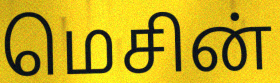
மெசின்